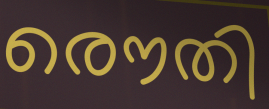
രൌതി